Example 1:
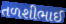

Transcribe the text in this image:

તળશીભાઈ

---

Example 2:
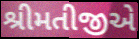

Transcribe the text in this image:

શ્રીમતીજીએ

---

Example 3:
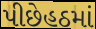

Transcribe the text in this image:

પીછેહઠમાં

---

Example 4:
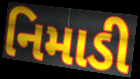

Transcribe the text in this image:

નિમાડી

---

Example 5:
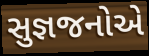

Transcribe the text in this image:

સુજ્ઞજનોએ